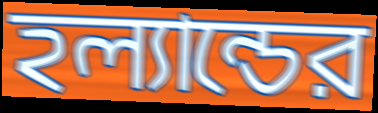
হল্যান্ডের